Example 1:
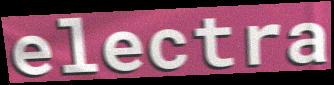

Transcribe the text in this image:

electra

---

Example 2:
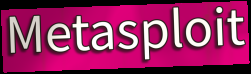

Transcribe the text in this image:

Metasploit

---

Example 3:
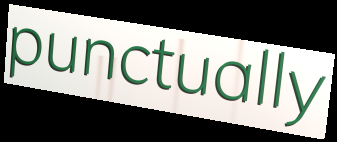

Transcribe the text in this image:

punctually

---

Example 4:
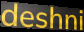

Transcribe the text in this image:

deshni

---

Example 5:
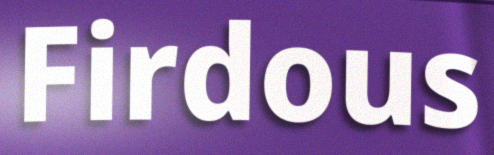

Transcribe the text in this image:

Firdous